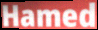
Hamed